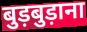
बुड़बुड़ाना